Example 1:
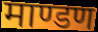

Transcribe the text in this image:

माण्डण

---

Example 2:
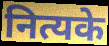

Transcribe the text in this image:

नित्यके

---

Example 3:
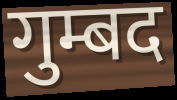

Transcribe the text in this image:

गुम्बद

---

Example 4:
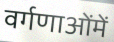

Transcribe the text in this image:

वर्गणाओंमें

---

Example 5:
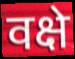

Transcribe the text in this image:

वक्षे